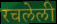
रचलेली